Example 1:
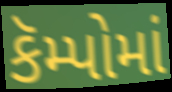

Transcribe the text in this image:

કૅમ્પોમાં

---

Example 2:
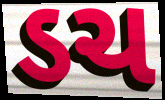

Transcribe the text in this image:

ડચ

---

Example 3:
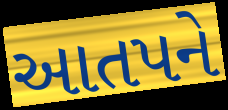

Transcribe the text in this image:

આતપને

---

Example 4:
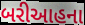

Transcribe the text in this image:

બરીઆહના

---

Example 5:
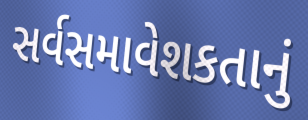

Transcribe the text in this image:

સર્વસમાવેશકતાનું